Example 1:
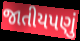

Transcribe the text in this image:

જાતીયપણું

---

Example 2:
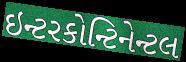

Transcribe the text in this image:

ઇન્ટરકોન્ટિનેન્ટલ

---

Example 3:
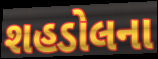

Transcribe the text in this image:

શહડોલના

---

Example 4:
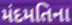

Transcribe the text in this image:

મંદમતિના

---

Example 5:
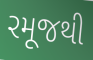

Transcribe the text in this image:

રમૂજથી